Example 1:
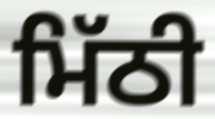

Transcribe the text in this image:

ਮਿੱਠੀ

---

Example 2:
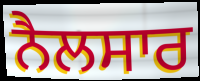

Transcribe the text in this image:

ਨੈਲਸਾਰ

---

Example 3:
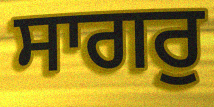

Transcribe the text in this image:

ਸਾਗਰੁ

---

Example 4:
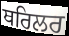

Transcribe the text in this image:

ਥਰਿਲਰ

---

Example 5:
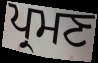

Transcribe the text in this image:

ਪ੍ਰਮਣ